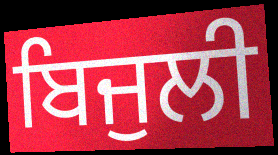
ਬਿਜੁਲੀ